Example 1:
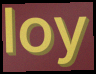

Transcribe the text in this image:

loy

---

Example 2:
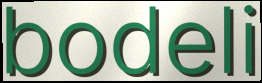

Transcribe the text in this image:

bodeli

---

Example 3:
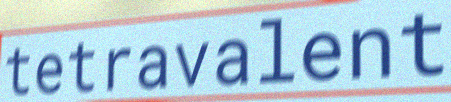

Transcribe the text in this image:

tetravalent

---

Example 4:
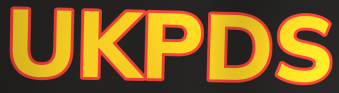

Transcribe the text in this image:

UKPDS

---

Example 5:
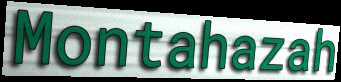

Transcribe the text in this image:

Montahazah